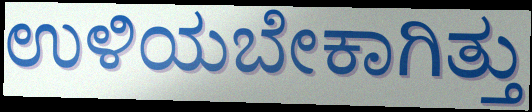
ಉಳಿಯಬೇಕಾಗಿತ್ತು